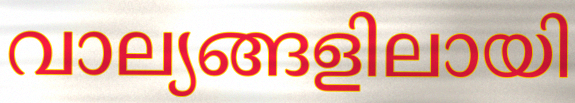
വാല്യങ്ങളിലായി